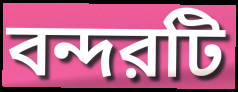
বন্দরটি